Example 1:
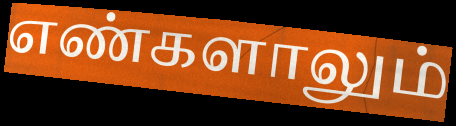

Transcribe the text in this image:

எண்களாலும்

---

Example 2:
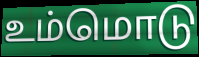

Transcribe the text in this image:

உம்மொடு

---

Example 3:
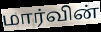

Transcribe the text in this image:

மார்வின்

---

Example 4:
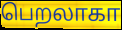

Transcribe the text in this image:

பெறலாகா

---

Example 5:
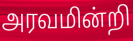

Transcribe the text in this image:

அரவமின்றி